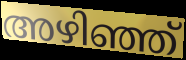
അഴിഞ്ഞ്